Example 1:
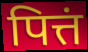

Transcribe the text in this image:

पित्तं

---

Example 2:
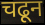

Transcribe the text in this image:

चढून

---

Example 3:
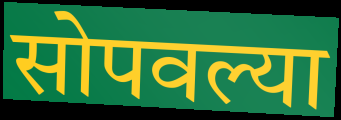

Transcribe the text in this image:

सोपवल्या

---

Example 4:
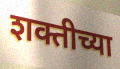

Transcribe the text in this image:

शक्तीच्या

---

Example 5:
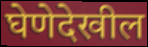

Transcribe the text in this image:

घेणेदेखील